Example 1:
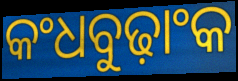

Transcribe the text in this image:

କଂଧବୁଢ଼ାଂକ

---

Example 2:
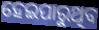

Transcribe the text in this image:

ହେଇପାରୁଥିବ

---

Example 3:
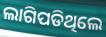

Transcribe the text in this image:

ଲାଗିପଡିଥିଲେ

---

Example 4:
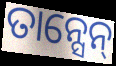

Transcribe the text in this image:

ତାନ୍ସେନ୍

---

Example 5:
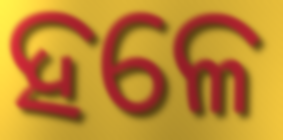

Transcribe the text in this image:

ହଳେ